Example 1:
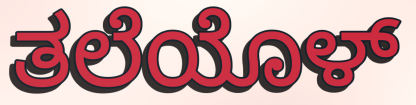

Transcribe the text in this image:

ತಲೆಯೊಳ್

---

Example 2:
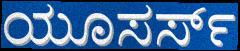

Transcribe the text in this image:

ಯೂಸರ್ಸ್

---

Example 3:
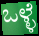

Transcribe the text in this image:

ಒಳ್ಳೆ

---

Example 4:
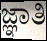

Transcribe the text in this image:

ಜ್ಞಾತಿ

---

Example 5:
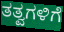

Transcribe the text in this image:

ತತ್ವಗಳಿಗೆ